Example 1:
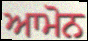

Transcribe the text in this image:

ਆਮੋਨ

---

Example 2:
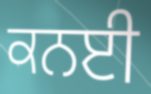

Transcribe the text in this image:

ਕਨਈ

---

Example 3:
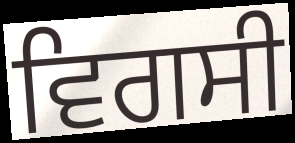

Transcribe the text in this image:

ਵਿਗਸੀ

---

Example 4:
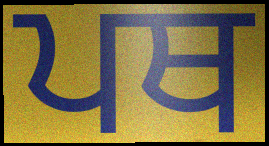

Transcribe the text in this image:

ਪਥ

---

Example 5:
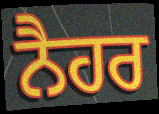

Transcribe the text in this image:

ਨੈਹਰ